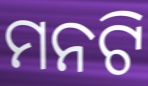
ମନଟି